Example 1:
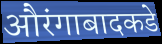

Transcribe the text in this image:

औरंगाबादकडे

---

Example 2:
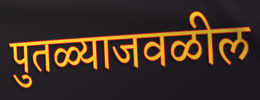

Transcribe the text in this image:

पुतळ्याजवळील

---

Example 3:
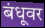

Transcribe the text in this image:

बंधूवर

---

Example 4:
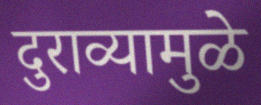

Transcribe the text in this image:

दुराव्यामुळे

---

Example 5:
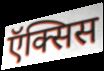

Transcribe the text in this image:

ऍक्सिस